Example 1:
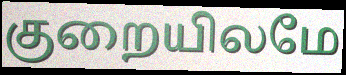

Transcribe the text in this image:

குறையிலமே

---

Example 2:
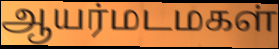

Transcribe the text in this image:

ஆயர்மடமகள்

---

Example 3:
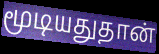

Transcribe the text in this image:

மூடியதுதான்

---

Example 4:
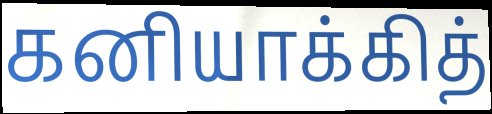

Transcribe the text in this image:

கனியாக்கித்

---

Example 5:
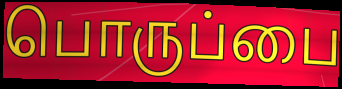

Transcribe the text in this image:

பொருப்பை